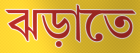
ঝড়াতে